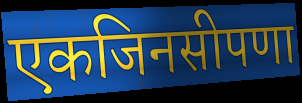
एकजिनसीपणा